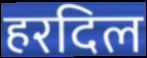
हरदिल